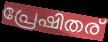
പ്രേഷിതര്